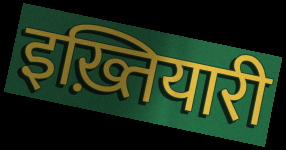
इख़्तियारी